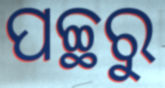
ପଚ୍ଛରୁ